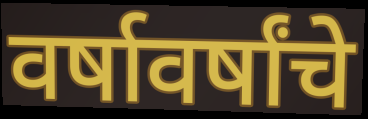
वर्षावर्षांचे